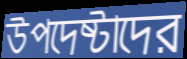
উপদেষ্টাদের